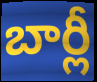
బార్లీ